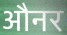
औनर